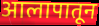
आलापातून